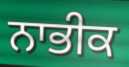
ਨਾਭੀਕ